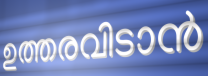
ഉത്തരവിടാൻ